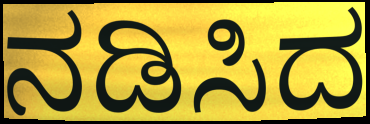
ನಡಿಸಿದ